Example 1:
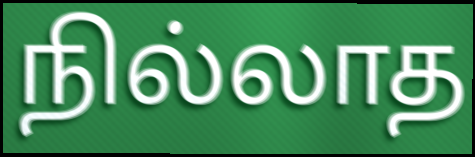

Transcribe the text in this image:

நில்லாத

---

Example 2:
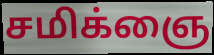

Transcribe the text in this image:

சமிக்ஞை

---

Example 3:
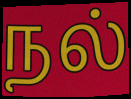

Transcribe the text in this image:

நல்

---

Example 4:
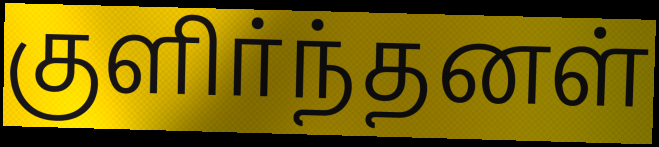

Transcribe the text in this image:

குளிர்ந்தனள்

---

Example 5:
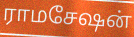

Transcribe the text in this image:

ராமசேஷன்